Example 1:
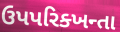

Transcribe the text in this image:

ઉપપરિક્ખન્તા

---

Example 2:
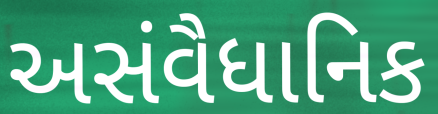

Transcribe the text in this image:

અસંવૈધાનિક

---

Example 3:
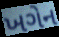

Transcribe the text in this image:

ખગેન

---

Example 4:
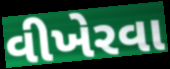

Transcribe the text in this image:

વીખેરવા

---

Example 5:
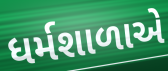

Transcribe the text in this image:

ધર્મશાળાએ